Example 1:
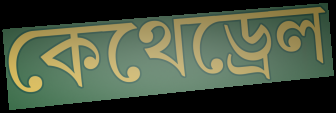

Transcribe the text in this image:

কেথেড্ৰেল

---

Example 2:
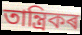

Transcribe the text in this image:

তান্ত্ৰিকৰ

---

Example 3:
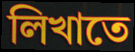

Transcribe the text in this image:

লিখাতে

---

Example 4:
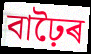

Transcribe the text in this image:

বাঢ়ৈৰ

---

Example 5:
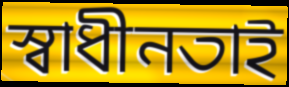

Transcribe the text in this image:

স্বাধীনতাই